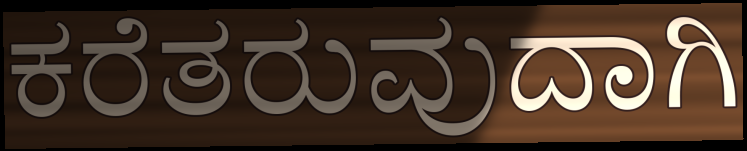
ಕರೆತರುವುದಾಗಿ